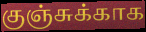
குஞ்சுக்காக